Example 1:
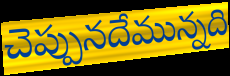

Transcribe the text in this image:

చెప్పునదేమున్నది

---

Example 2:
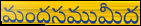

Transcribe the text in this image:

మందసముమీద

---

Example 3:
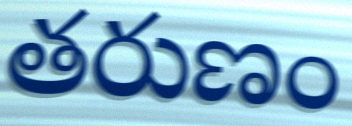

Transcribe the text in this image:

తరుణం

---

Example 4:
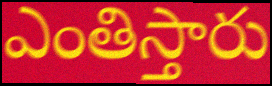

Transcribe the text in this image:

ఎంతిస్తారు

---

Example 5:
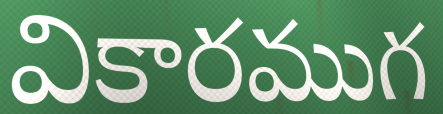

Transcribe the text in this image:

వికారముగ